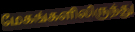
மேகங்களிலிருந்து